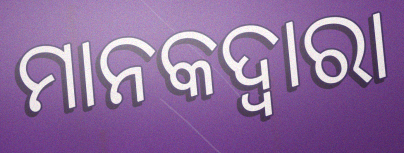
ମାନକଦ୍ୱାରା